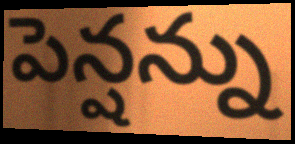
పెన్షన్ను